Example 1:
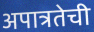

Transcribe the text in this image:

अपात्रतेची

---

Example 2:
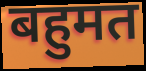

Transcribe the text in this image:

बहुमत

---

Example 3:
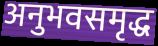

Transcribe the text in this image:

अनुभवसमृद्ध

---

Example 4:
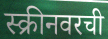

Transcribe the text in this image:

स्क्रीनवरची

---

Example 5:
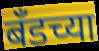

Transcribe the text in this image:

बँडच्या